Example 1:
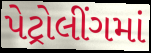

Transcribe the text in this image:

પેટ્રોલીંગમાં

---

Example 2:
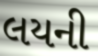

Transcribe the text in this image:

લયની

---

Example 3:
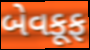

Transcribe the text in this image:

બેવકૂફ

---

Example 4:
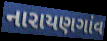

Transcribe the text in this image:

નારાયણગાંવ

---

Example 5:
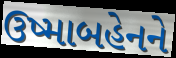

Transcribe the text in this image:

ઉષ્માબહેનને